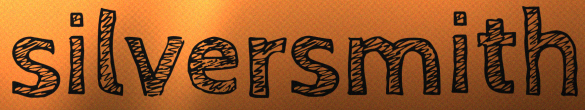
silversmith